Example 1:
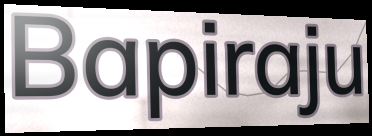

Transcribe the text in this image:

Bapiraju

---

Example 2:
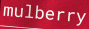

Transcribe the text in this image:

mulberry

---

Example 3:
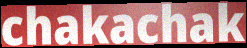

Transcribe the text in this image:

chakachak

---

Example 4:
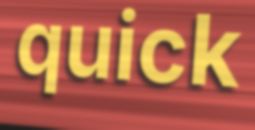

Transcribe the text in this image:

quick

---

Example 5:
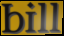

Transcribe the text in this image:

bill